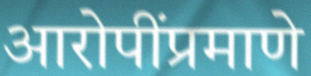
आरोपींप्रमाणे